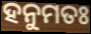
ହନୁମତଃ